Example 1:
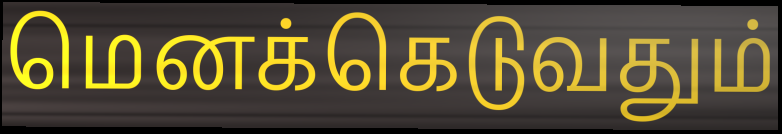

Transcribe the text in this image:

மெனக்கெடுவதும்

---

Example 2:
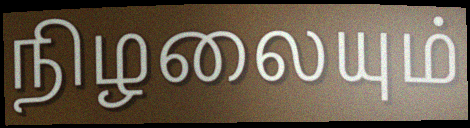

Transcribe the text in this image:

நிழலையும்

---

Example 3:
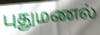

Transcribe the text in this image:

புதுமணல்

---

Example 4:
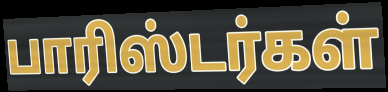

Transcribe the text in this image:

பாரிஸ்டர்கள்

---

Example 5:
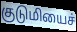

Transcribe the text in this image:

குடுமியைச்